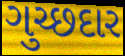
ગુચ્છદાર